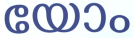
യോം